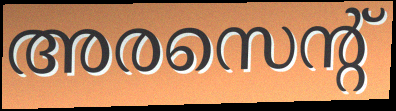
അരസെന്റ്